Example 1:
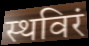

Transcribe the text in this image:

स्थविरं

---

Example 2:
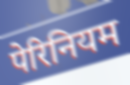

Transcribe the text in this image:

पेरिनियम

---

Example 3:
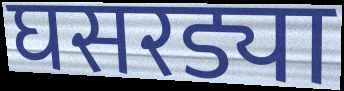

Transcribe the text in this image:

घसरड्या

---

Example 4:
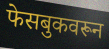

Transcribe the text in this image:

फेसबुकवरून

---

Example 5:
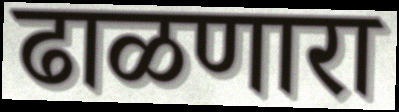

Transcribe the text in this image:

ढाळणारा